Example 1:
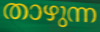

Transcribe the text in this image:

താഴുന്ന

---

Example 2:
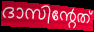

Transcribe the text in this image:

ദാസിന്റേത്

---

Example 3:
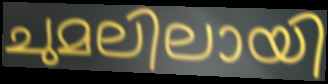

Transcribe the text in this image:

ചുമലിലായി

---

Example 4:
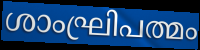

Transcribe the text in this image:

ശാംഘ്രിപത്മം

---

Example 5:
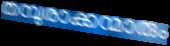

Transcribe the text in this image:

തമ്പുരാക്കന്മാരും